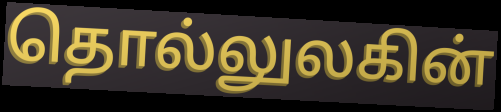
தொல்லுலகின்